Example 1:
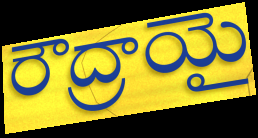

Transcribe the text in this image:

రౌద్రాయై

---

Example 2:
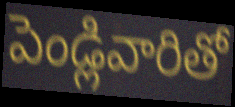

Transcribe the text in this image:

పెండ్లివారితో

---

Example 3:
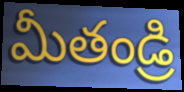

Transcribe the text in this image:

మీతండ్రి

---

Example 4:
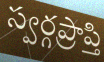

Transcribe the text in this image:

స్వర్గప్రాప్తి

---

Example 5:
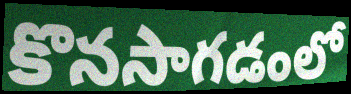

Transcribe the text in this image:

కొనసాగడంలో